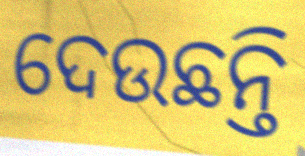
ଦେଉଛନ୍ତି